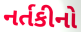
નર્તકીનો